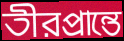
তীরপ্রান্তে